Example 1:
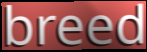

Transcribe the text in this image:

breed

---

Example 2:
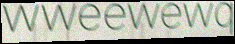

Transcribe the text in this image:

wweewewq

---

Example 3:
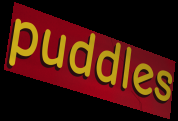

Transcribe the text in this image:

puddles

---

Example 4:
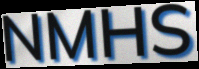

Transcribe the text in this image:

NMHS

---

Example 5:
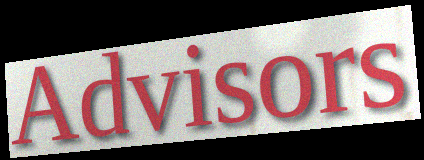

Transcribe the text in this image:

Advisors